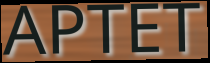
APTET